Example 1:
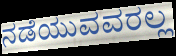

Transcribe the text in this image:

ನಡೆಯುವವರಲ್ಲ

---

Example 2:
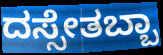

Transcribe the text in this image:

ದಸ್ಸೇತಬ್ಬಾ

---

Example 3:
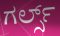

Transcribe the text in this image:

ಗರ್ಲ್ಸ್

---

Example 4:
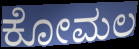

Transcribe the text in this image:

ಕೋಮಲ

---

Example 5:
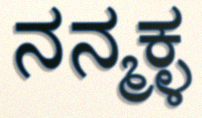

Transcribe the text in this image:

ನನ್ಮಕ್ಳ